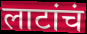
लाटांचं